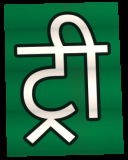
ट्री